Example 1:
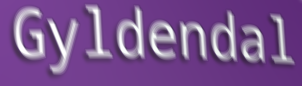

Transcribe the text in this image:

Gyldendal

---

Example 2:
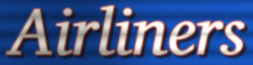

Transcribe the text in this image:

Airliners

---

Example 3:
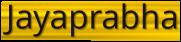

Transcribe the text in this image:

Jayaprabha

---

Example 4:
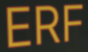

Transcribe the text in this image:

ERF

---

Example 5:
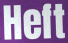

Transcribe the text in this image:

Heft